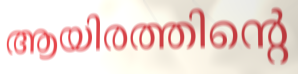
ആയിരത്തിന്റെ